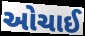
ઓચાઈ